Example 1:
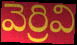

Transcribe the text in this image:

వెర్రివి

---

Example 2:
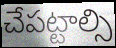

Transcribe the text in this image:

చేపట్టాల్సి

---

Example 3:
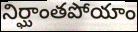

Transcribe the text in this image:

నిర్ఘాంతపోయాం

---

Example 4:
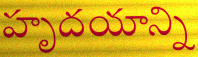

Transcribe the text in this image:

హృదయాన్ని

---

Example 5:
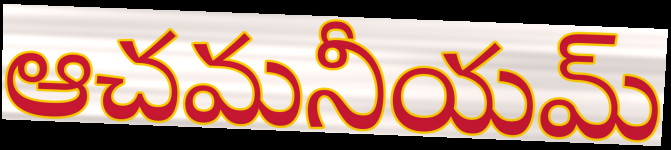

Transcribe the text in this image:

ఆచమనీయమ్